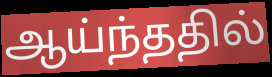
ஆய்ந்ததில்